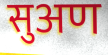
सुअण